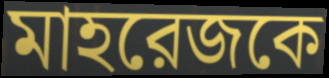
মাহরেজকে